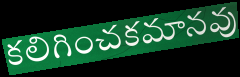
కలిగించకమానవు